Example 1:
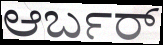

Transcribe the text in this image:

ಆರ್ಬರ್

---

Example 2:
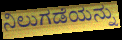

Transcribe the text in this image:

ನಿಲುಗಡೆಯನ್ನು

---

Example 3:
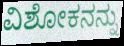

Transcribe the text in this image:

ವಿಶೋಕನನ್ನು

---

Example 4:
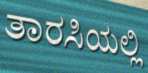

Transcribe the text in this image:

ತಾರಸಿಯಲ್ಲಿ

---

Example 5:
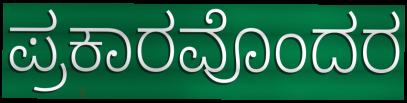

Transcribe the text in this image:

ಪ್ರಕಾರವೊಂದರ